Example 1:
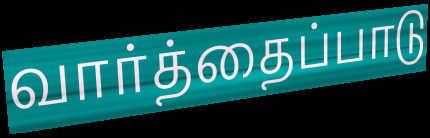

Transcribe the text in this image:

வார்த்தைப்பாடு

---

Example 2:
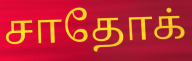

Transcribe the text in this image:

சாதோக்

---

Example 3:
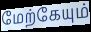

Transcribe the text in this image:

மேற்கேயும்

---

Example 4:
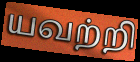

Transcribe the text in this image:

யவற்றி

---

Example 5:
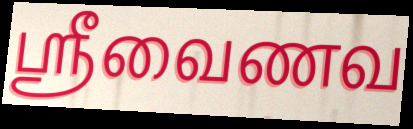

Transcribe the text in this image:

ஸ்ரீவைணவ